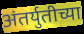
अंतर्युतीच्या